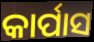
କାର୍ପାସ